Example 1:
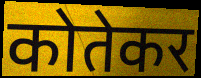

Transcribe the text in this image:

कोतेकर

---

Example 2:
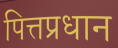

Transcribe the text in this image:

पित्तप्रधान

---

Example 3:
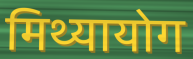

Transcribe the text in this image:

मिथ्यायोग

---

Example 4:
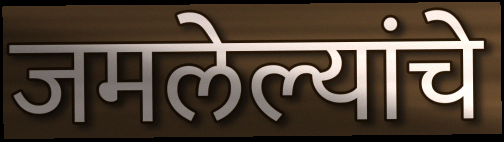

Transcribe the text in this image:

जमलेल्यांचे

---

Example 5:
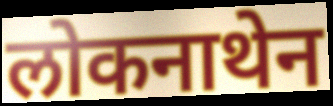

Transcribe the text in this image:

लोकनाथेन